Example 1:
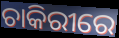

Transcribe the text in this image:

ଚାକିରୀରେ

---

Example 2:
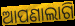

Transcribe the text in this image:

ଆପଣାଲାଗି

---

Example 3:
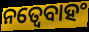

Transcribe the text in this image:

ନତ୍ୱେବାହଂ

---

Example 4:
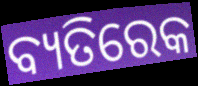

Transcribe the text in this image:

ବ୍ୟତିରେକ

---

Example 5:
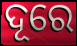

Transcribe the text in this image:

ଦୂରେ